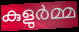
കുളുർമ്മ